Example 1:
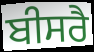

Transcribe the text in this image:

ਬੀਸਰੈ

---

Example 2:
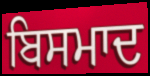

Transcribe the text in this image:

ਬਿਸਮਾਦ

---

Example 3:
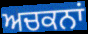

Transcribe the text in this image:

ਅਚਕਨਾਂ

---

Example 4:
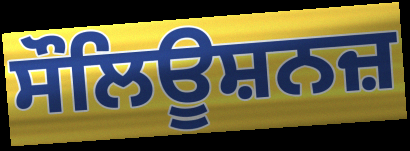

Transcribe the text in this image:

ਸੌਲਿਊਸ਼ਨਜ਼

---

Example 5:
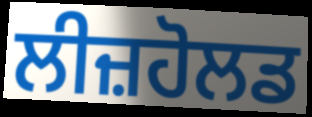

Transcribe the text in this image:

ਲੀਜ਼ਹੋਲਡ